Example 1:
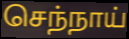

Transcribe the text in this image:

செந்நாய்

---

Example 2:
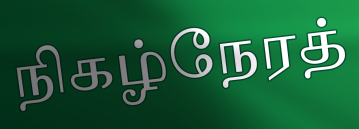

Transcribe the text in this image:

நிகழ்நேரத்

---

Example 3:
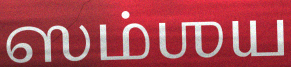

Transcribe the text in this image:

ஸம்ஶய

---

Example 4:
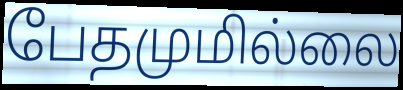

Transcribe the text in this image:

பேதமுமில்லை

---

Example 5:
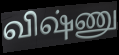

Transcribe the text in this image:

விஷ்ணு